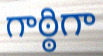
గాఠ్ఠిగా